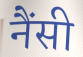
नैंसी